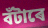
বঁটাৰে